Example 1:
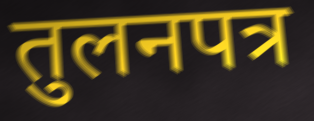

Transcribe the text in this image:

तुलनपत्र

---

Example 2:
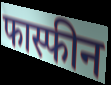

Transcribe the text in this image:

फास्फीन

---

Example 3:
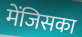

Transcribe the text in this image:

मेंजिसका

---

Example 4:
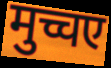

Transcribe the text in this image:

मुच्चए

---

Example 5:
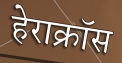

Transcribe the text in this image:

हेराक्रॉस